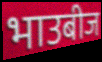
भाउबीज